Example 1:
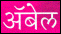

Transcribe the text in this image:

ॲबेल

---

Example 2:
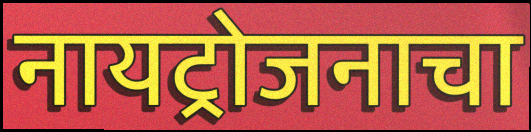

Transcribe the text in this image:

नायट्रोजनाचा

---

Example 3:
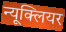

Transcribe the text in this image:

न्यूक्लियर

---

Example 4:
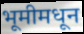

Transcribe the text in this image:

भूमीमधून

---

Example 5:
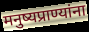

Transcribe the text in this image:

मनुष्यप्राण्यांना